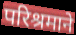
परिश्रमाने